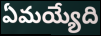
ఏమయ్యేది